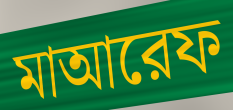
মাআরেফ